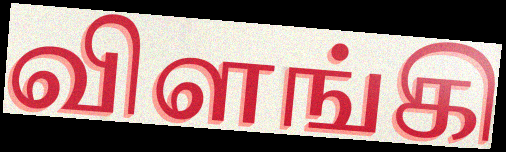
விளங்கி